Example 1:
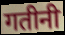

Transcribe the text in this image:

गतीनी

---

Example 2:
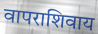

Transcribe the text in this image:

वापराशिवाय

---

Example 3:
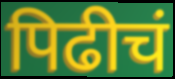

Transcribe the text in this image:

पिढीचं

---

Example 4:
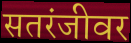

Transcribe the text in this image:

सतरंजीवर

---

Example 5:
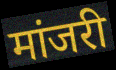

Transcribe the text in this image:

मांजरी